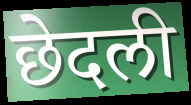
छेदली